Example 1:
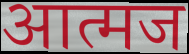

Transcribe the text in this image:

आत्मज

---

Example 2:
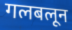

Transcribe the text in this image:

गलबलून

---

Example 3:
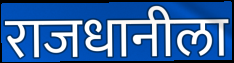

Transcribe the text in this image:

राजधानीला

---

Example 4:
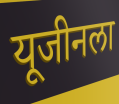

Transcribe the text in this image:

यूजीनला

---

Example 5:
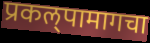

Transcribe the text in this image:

प्रकल्पामागचा